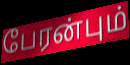
பேரன்பும்